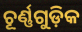
ଚୂର୍ଣ୍ଣଗୁଡ଼ିକ